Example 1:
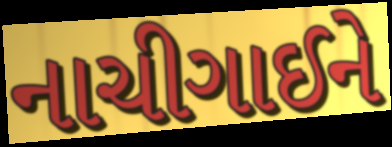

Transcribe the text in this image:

નાચીગાઈને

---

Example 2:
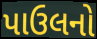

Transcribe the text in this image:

પાઉલનો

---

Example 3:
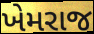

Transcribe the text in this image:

ખેમરાજ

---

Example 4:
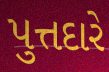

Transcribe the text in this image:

પુત્તદારે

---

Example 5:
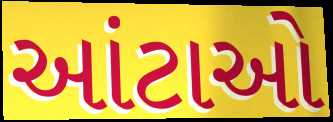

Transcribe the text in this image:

આંટાઓ